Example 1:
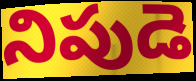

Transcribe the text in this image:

నిపుడె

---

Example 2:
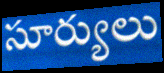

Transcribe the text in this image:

సూర్యులు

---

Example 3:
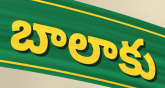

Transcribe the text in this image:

బాలాకు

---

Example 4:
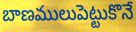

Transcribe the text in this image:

బాణములుపెట్టుకొనే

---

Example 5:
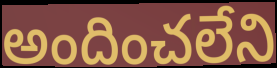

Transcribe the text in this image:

అందించలేని